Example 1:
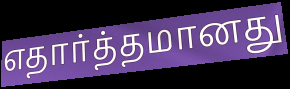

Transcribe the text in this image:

எதார்த்தமானது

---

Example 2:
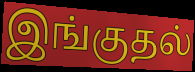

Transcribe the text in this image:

இங்குதல்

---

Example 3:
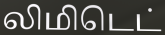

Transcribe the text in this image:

லிமிடெட்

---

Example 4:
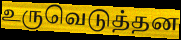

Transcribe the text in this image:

உருவெடுத்தன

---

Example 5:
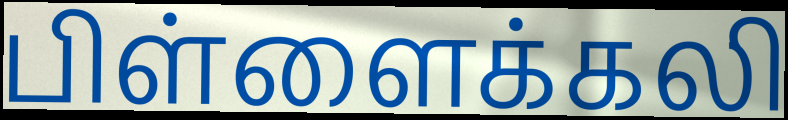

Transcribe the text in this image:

பிள்ளைக்கலி